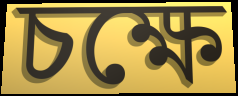
চক্ষে